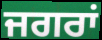
ਜਗਰਾਂ